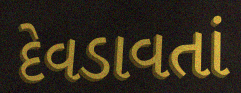
દેવડાવતાં